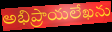
అభిప్రాయలేఖను